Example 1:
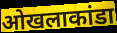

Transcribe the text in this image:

ओखलाकांडा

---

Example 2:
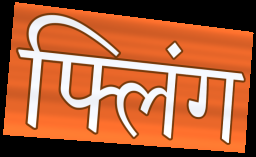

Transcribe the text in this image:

फ्लिंग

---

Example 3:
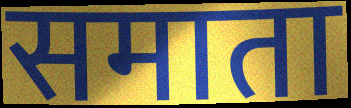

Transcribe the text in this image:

समाता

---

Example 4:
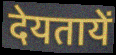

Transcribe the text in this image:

देयतायें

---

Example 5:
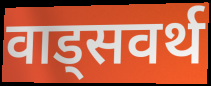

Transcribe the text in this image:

वाड्सवर्थ